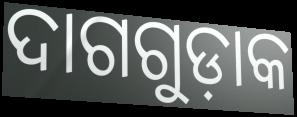
ଦାଗଗୁଡ଼ାକ